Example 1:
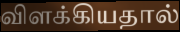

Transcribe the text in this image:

விளக்கியதால்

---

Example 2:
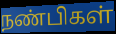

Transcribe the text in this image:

நண்பிகள்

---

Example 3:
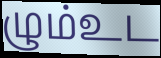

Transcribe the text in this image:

ழும்உட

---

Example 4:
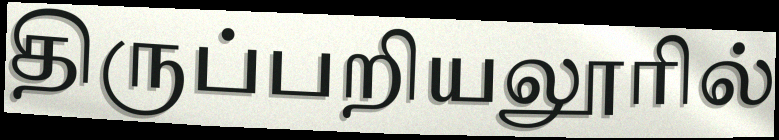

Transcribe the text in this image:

திருப்பறியலூரில்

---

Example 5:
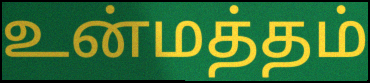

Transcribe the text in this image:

உன்மத்தம்